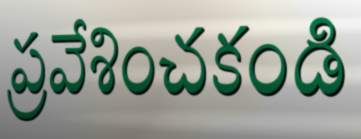
ప్రవేశించకండి